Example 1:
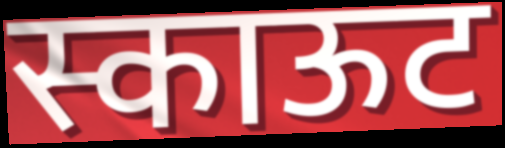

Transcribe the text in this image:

स्काऊट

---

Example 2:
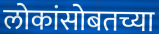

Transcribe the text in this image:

लोकांसोबतच्या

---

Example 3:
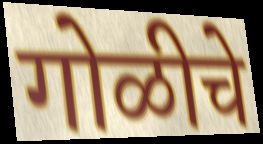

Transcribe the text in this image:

गोळीचे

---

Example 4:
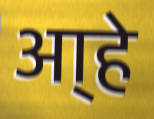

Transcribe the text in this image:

आ्हे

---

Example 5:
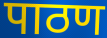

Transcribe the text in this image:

पाठण